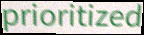
prioritized